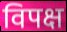
विपक्ष